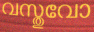
വസ്തുവോ